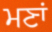
ਮਣਾਂ